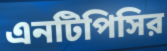
এনটিপিসির